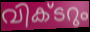
വിക്ടറും